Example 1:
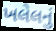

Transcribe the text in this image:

ખલેલનું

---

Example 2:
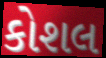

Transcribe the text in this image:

કોશલ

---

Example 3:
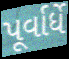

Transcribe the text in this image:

પૂર્વાર્ધે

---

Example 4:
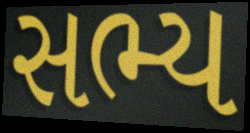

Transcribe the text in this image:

સભ્ય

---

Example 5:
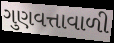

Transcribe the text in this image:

ગુણવત્તાવાળી